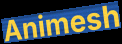
Animesh